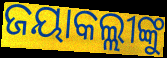
ଜୟାକଲ୍ଲୀଙ୍କୁ